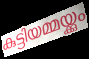
കുട്ടിയമ്മയ്ക്കും